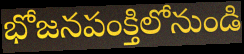
భోజనపంక్తిలోనుండి